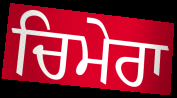
ਚਿਮੇਰਾ